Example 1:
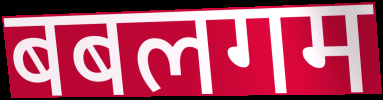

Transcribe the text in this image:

बबलगम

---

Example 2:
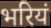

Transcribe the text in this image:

भरियं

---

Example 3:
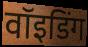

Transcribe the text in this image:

वॉइडिंग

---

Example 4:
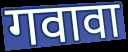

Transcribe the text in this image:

गवावा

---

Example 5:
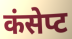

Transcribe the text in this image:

कंसेप्ट